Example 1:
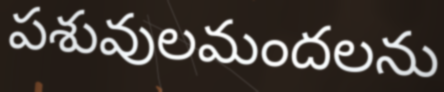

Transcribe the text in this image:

పశువులమందలను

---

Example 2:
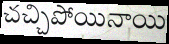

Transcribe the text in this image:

చచ్చిపోయినాయి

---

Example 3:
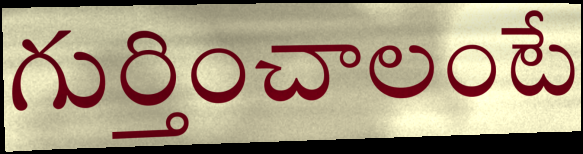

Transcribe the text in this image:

గుర్తించాలంటే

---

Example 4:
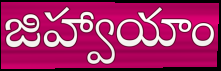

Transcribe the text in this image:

జిహ్వాయాం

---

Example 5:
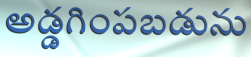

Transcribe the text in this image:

అడ్డగింపబడును